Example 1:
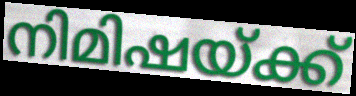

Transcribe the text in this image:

നിമിഷയ്ക്ക്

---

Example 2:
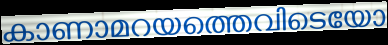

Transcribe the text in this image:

കാണാമറയത്തെവിടെയോ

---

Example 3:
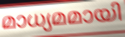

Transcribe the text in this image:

മാധ്യമമായി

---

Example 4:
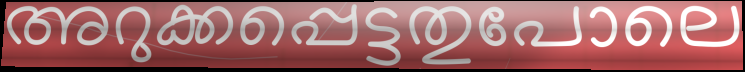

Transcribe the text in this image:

അറുക്കപ്പെട്ടതുപോലെ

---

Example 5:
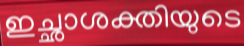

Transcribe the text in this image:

ഇച്ഛാശക്തിയുടെ